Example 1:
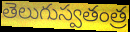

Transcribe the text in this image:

తెలుగుస్వతంత్ర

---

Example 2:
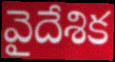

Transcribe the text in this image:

వైదేశిక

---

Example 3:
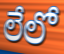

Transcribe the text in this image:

లేలో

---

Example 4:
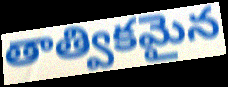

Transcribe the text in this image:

తాత్వికమైన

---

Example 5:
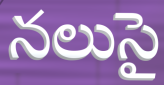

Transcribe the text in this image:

నలుసై